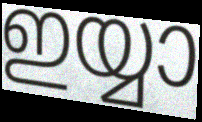
ഇയ്യാ